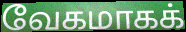
வேகமாகக்